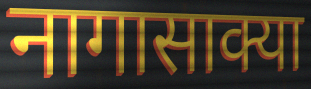
नागासाक्या